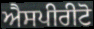
ਐਸਪੀਰੀਟੋ